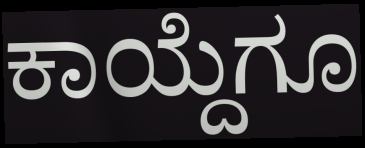
ಕಾಯ್ದೆಗೂ